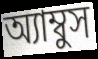
অ্যাম্বুস